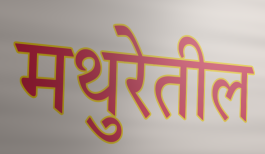
मथुरेतील